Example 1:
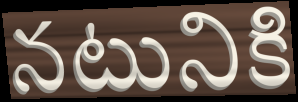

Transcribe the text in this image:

నటునికి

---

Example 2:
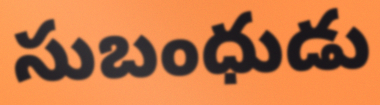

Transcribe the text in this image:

సుబంధుడు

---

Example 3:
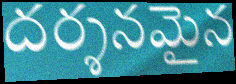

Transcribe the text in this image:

దర్శనమైన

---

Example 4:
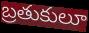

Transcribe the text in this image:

బ్రతుకులూ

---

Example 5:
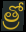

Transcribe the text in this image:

త్రో